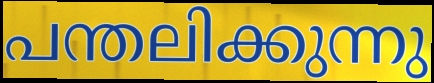
പന്തലിക്കുന്നു